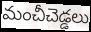
మంచీచెడ్డలు